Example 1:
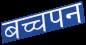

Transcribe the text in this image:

बच्चपन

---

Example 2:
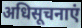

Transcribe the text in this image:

अधिसूचनाएं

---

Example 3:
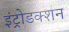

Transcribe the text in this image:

इंट्रोडक्शन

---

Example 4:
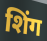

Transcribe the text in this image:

शिंग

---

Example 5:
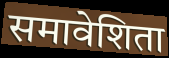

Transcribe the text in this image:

समावेशिता